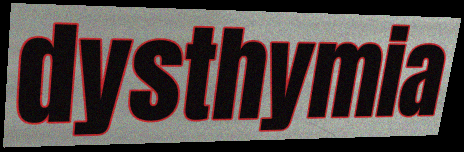
dysthymia